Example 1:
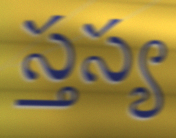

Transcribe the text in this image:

స్తస్య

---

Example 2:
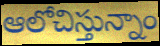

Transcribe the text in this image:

ఆలోచిస్తున్నాం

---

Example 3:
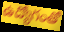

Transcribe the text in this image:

ఉద్యోగంతో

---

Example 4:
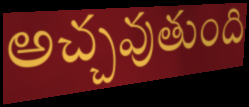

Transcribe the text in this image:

అచ్చవుతుంది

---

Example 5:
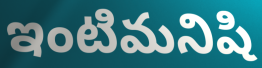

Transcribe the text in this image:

ఇంటిమనిషి